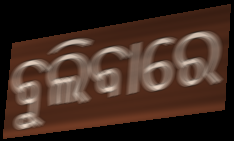
ବୁଲିବାରେ